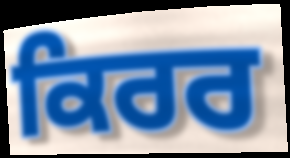
ਕਿਰਰ